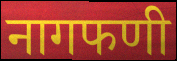
नागफणी